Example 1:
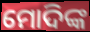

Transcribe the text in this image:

ମୋଦିଙ୍କ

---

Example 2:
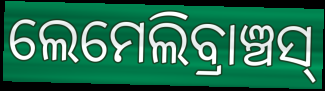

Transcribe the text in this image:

ଲେମେଲିବ୍ରାଞ୍ଚସ୍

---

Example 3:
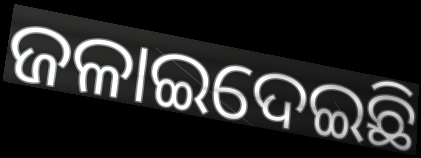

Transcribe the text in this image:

ଜଳାଇଦେଇଛି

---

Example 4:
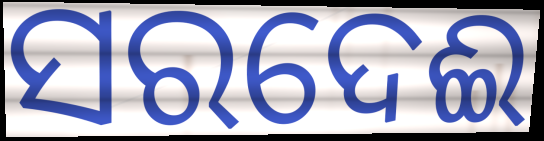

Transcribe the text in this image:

ସରଦେଈ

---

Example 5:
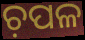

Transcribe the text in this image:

ଚ଼ପଳ